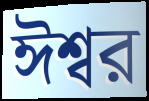
ঈশ্বর